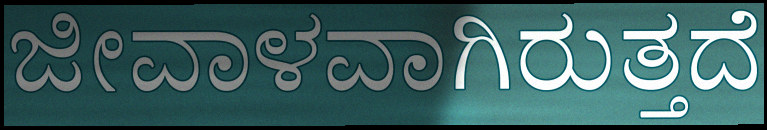
ಜೀವಾಳವಾಗಿರುತ್ತದೆ